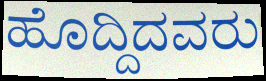
ಹೊದ್ದಿದವರು